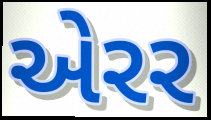
એરર